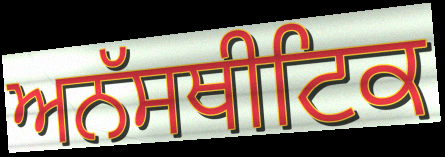
ਅਨੱਸਥੀਟਿਕ